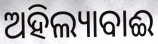
ଅହିଲ୍ୟାବାଈ